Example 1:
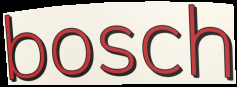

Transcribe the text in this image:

bosch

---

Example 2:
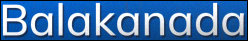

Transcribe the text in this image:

Balakanada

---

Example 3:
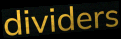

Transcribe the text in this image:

dividers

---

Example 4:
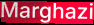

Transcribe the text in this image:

Marghazi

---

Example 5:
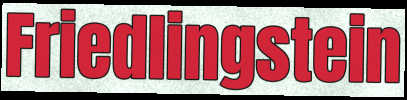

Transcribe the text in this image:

Friedlingstein